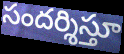
సందర్శిస్తూ